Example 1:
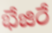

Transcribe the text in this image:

భేజిరే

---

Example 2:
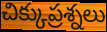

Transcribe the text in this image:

చిక్కుప్రశ్నలు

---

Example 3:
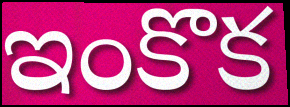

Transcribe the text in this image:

ఇంకొక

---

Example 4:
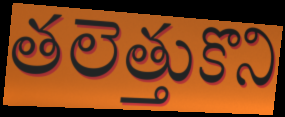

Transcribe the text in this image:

తలెత్తుకొని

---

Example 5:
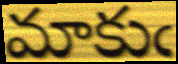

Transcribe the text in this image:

మాకుఁ